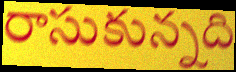
రాసుకున్నది